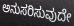
ಅನುಸರಿಸುವುದೇ